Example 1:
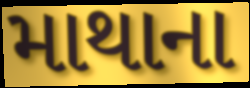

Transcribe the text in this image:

માથાના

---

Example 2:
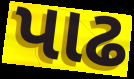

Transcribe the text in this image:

પાઢ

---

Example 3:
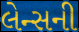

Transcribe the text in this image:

લેન્સની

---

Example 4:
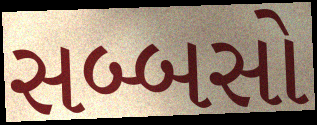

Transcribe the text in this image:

સબ્બસો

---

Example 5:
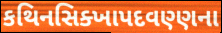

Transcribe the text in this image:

કથિનસિક્ખાપદવણ્ણના